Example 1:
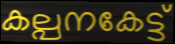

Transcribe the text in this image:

കല്പനകേട്ട്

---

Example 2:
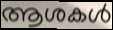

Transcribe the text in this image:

ആശകൾ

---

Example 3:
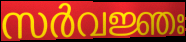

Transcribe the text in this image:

സർവജ്ഞഃ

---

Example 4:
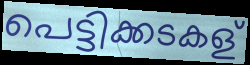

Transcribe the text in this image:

പെട്ടിക്കടകള്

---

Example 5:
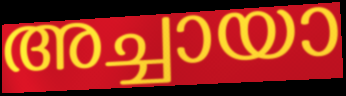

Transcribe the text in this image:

അച്ചായാ